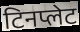
टिनप्लेट